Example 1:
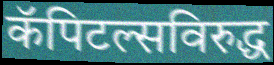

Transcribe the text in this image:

कॅपिटल्सविरुद्ध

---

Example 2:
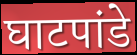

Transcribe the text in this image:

घाटपांडे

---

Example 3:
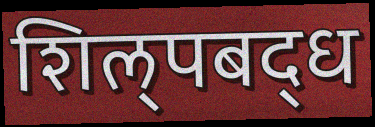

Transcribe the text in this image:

शिल्पबद्ध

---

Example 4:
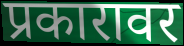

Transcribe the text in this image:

प्रकारावर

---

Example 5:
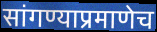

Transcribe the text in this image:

सांगण्याप्रमाणेच